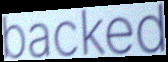
backed